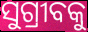
ସୁଗ୍ରୀବକୁ